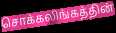
சொக்கலிங்கத்தின்